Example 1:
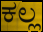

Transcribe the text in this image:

ಕಲ್ಲ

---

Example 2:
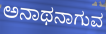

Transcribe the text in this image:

ಅನಾಥನಾಗುವ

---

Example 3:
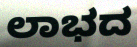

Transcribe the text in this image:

ಲಾಭದ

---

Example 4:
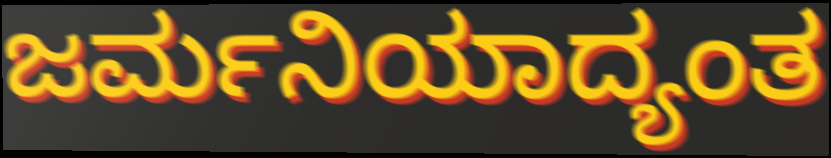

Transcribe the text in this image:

ಜರ್ಮನಿಯಾದ್ಯಂತ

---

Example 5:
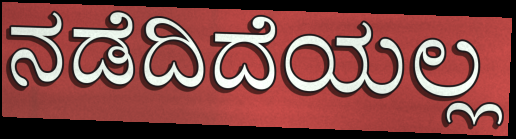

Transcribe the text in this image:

ನಡೆದಿದೆಯಲ್ಲ